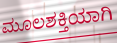
ಮೂಲಶಕ್ತಿಯಾಗಿ